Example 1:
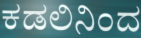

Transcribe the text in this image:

ಕಡಲಿನಿಂದ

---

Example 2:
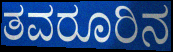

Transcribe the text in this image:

ತವರೂರಿನ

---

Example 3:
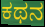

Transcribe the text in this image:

ಕಥನ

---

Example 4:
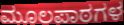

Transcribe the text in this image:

ಮೂಲಪಾಠಗಳ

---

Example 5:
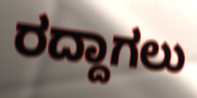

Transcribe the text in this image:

ರದ್ದಾಗಲು